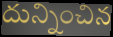
దున్నించిన